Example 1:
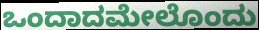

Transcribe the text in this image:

ಒಂದಾದಮೇಲೊಂದು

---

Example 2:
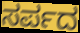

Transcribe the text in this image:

ಸರ್ಪದ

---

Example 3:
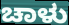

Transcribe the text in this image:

ಚಾಳು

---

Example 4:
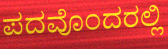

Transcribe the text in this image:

ಪದವೊಂದರಲ್ಲಿ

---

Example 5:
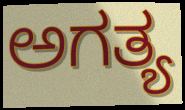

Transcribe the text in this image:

ಅಗತ್ಯ